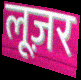
लूज़र